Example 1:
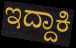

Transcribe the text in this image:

ಇದ್ದಾಕಿ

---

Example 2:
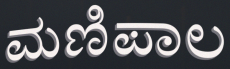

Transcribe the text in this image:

ಮಣಿಪಾಲ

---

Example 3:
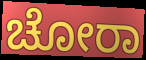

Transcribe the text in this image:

ಚೋರಾ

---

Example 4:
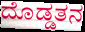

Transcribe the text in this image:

ದೊಡ್ಡತನ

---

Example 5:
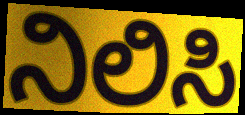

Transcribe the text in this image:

ನಿಲಿಸಿ